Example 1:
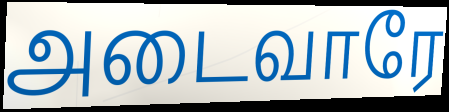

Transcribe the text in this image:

அடைவாரே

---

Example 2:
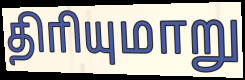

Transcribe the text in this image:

திரியுமாறு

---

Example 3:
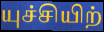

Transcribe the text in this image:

யுச்சியிற்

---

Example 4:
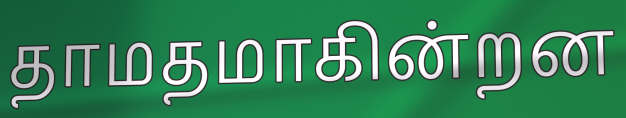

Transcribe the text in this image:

தாமதமாகின்றன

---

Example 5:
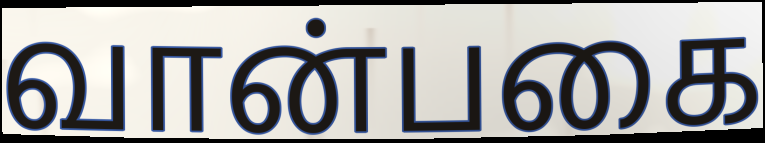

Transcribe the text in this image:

வான்பகை